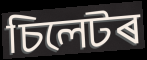
চিলেটৰ